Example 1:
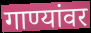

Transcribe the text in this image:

गाण्यांवर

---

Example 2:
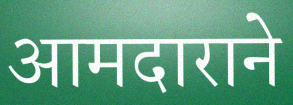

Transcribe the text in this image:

आमदाराने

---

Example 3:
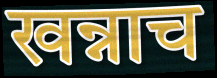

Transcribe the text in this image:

खन्नाच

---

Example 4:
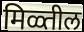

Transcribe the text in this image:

मिळ्तील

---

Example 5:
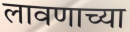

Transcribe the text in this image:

लावणाच्या